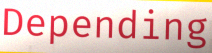
Depending